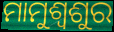
ମାମୁଶ୍ବଶୁର